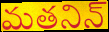
మతనిన్